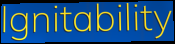
Ignitability